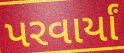
પરવાર્યાં